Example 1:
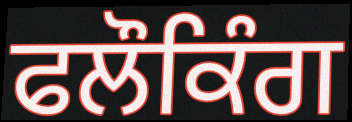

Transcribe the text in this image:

ਫਲੌਕਿੰਗ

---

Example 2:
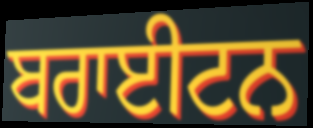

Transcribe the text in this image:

ਬਰਾਈਟਨ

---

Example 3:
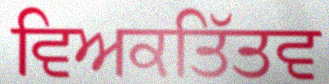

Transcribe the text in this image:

ਵਿਅਕਤਿੱਤਵ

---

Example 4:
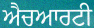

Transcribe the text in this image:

ਐਚਆਰਟੀ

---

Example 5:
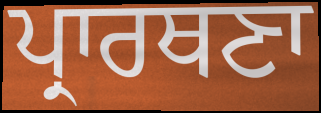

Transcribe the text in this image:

ਪ੍ਰਾਰਥਣਾ